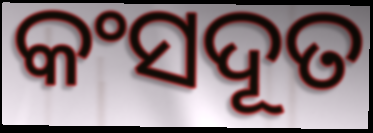
କଂସଦୂତ